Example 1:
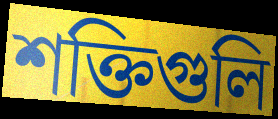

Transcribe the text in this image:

শক্তিগুলি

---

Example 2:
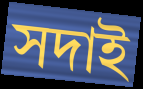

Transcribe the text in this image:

সদাই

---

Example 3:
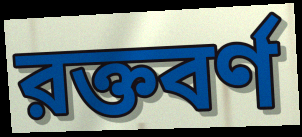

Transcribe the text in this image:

রক্তবর্ণ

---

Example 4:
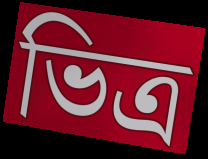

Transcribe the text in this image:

ভিত্র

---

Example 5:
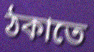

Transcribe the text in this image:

ঠকাতে